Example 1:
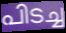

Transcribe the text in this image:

പിടച്ച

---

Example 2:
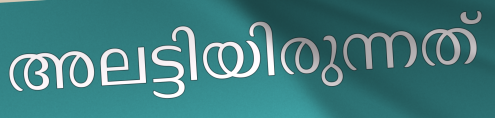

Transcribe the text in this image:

അലട്ടിയിരുന്നത്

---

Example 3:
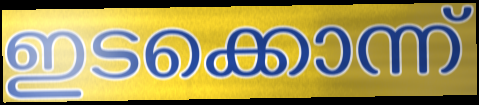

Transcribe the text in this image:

ഇടക്കൊന്ന്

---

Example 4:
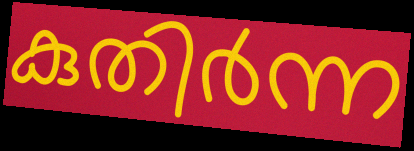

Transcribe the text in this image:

കുതിർന്ന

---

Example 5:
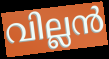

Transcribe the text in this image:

വില്ലൻ